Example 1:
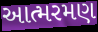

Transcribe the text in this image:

આત્મરમણ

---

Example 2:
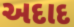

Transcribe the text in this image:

અદાદ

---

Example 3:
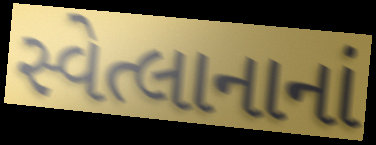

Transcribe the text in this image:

સ્વેત્લાનાનાં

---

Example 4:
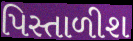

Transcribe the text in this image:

પિસ્તાળીશ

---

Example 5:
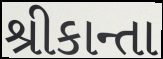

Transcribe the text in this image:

શ્રીકાન્તા